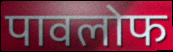
पावलोफ